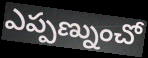
ఎప్పణ్నుంచో